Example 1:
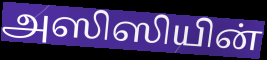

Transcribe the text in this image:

அஸிஸியின்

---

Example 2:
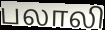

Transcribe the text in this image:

பலாலி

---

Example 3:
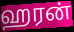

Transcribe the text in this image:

ஹரன்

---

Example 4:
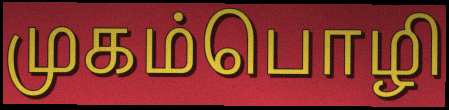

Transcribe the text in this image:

முகம்பொழி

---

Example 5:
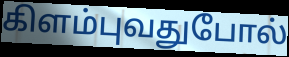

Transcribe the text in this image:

கிளம்புவதுபோல்